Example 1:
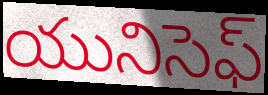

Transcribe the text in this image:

యునిసెఫ్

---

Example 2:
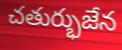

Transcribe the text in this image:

చతుర్భుజేన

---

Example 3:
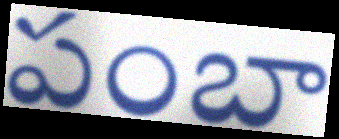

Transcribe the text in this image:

పంబా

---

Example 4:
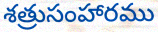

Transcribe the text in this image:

శత్రుసంహారము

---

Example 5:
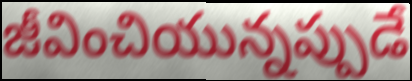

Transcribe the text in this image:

జీవించియున్నప్పుడే